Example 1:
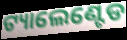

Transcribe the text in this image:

ଟ୍ୟାଲେଣ୍ଟେଡ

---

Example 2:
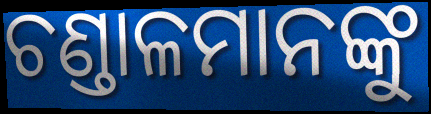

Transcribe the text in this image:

ଚଣ୍ଡାଳମାନଙ୍କୁ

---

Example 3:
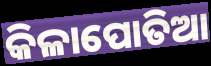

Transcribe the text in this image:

କିଳାପୋତିଆ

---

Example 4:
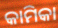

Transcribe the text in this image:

କାମିକା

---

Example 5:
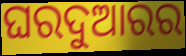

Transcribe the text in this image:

ଘରଦୁଆରର